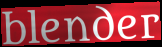
blender